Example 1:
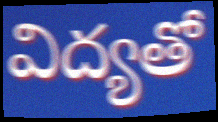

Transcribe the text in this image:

విద్యతో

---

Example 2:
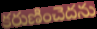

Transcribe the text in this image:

కరుణించెదను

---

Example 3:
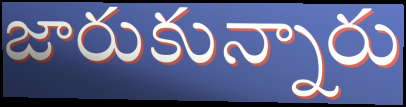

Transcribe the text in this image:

జారుకున్నారు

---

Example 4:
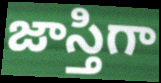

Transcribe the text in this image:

జాస్తిగా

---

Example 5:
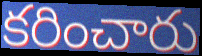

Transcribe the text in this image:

కరించారు